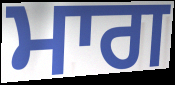
ਮਾਗ